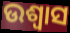
ଉଶ୍ୱାସ